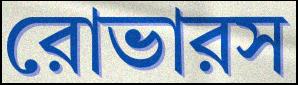
রোভারস